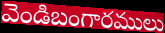
వెండిబంగారములు